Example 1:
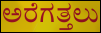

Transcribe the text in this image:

ಅರೆಗತ್ತಲು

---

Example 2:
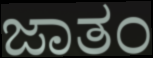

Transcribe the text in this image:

ಜಾತಂ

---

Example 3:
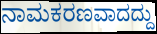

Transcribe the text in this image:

ನಾಮಕರಣವಾದದ್ದು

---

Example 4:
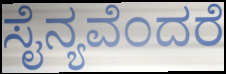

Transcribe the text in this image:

ಸೈನ್ಯವೆಂದರೆ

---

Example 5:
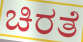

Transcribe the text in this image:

ಚಿರತೆ